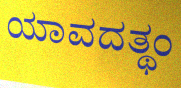
ಯಾವದತ್ಥಂ